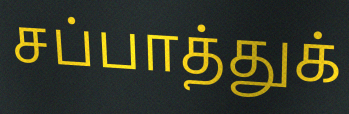
சப்பாத்துக்